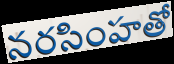
నరసింహతో